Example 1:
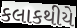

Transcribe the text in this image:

કલાકથીયે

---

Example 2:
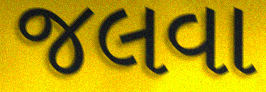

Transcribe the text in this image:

જલવા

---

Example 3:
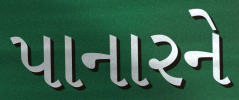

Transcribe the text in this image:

પાનારને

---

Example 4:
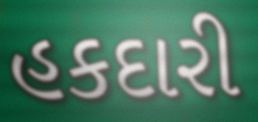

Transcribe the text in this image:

હકદારી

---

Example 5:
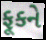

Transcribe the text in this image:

ફૂકને